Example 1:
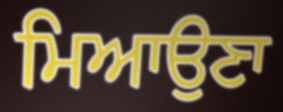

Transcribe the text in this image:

ਮਿਆਉਣਾ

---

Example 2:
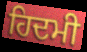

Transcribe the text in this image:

ਹਿਦਮੀ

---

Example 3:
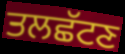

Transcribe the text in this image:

ਤਲਛੱਟਣ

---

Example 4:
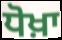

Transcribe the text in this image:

ਧੋਖ਼ਾ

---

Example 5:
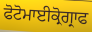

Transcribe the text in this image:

ਫੋਟੋਮਾਈਕ੍ਰੋਗ੍ਰਾਫ